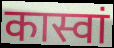
कास्वां